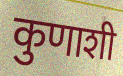
कुणाशी